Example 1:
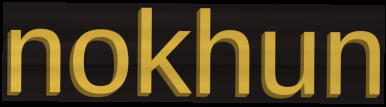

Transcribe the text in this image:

nokhun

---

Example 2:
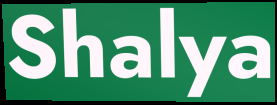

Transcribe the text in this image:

Shalya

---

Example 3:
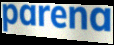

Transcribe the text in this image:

parena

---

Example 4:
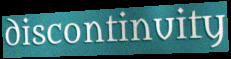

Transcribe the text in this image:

discontinuity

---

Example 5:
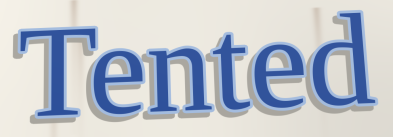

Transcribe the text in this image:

Tented